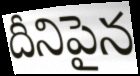
దీనిపైన